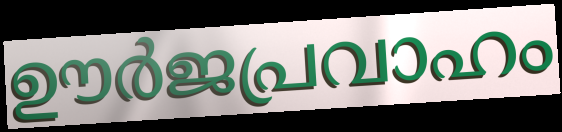
ഊർജപ്രവാഹം